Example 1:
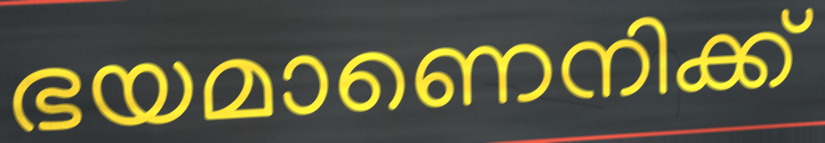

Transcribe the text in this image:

ഭയമാണെനിക്ക്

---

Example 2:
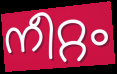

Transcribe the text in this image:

നീറ്റം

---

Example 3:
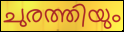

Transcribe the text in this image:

ചുരത്തിയും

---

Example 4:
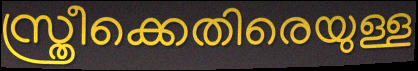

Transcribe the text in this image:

സ്ത്രീക്കെതിരെയുള്ള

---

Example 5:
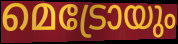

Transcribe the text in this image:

മെട്രോയും